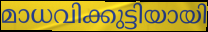
മാധവിക്കുട്ടിയായി